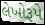
લેખોરૂપે